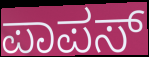
ಪಾಪಸ್